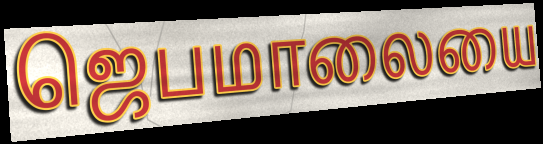
ஜெபமாலையை